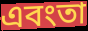
এবংতা